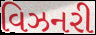
વિઝનરી